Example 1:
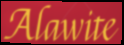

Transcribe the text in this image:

Alawite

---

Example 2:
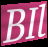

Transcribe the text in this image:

BIl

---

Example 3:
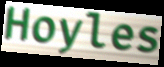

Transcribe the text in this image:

Hoyles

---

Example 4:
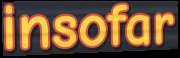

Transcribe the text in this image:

insofar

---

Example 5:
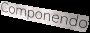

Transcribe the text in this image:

Componendo